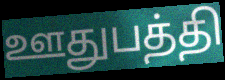
ஊதுபத்தி